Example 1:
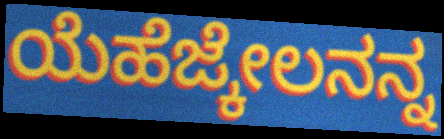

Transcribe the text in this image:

ಯೆಹೆಜ್ಕೇಲನನ್ನ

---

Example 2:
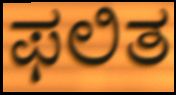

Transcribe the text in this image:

ಫಲಿತ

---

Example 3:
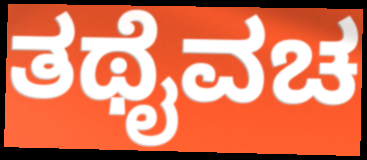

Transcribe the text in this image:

ತಥೈವಚ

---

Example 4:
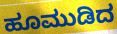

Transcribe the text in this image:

ಹೂಮುಡಿದ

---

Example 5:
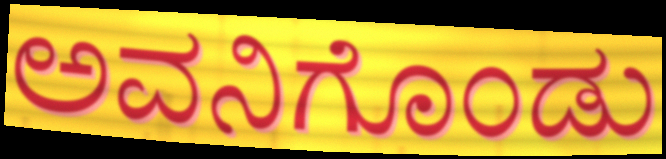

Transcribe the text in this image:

ಅವನಿಗೊಂಡು